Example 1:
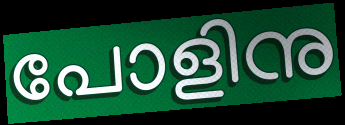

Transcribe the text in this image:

പോളിനു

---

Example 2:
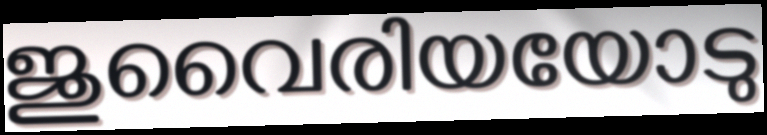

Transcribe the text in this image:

ജുവൈരിയയോടു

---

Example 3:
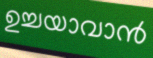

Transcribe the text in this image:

ഉച്ചയാവാൻ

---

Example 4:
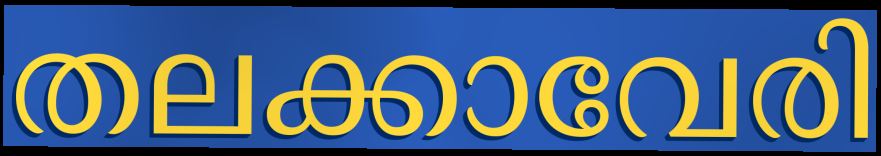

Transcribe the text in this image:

തലക്കാവേരി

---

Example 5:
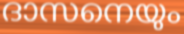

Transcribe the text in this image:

ദാസനെയും